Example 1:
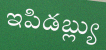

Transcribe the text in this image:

ఇపిడబ్ల్యు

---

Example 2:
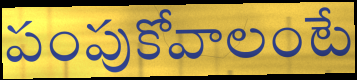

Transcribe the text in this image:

పంపుకోవాలంటే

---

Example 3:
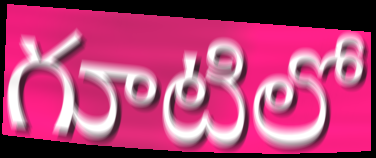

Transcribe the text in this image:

గూటిలో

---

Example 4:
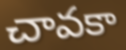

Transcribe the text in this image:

చావకా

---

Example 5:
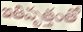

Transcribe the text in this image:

ఇతివృత్తంతో